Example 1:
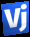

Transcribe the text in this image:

Vj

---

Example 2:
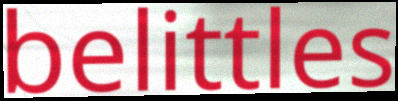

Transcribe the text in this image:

belittles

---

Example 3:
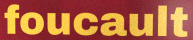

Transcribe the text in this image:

foucault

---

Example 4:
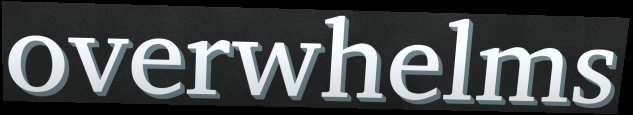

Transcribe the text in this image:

overwhelms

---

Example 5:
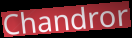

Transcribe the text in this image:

Chandror